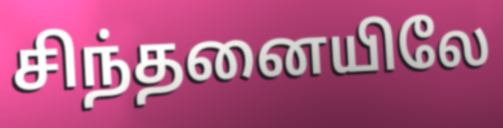
சிந்தனையிலே